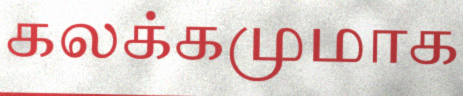
கலக்கமுமாக